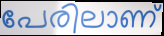
പേരിലാണ്